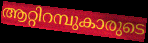
ആറ്റിറമ്പുകാരുടെ